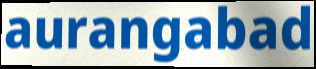
aurangabad